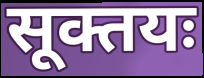
सूक्तयः